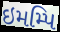
ઇમમ્પિ